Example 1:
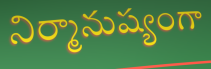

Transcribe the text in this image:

నిర్మానుష్యంగా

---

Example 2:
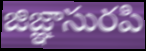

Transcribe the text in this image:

జిజ్ఞాసురపి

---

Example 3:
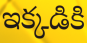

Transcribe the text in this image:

ఇక్కడికి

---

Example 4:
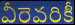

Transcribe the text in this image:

వీరెవరికీ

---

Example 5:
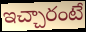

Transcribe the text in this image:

ఇచ్చారంటే